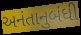
અનંતાનુબંધી